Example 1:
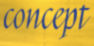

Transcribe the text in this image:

concept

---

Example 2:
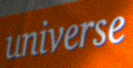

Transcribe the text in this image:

universe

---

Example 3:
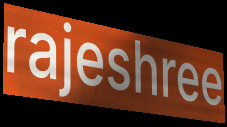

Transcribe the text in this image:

rajeshree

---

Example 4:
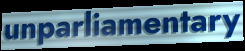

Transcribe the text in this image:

unparliamentary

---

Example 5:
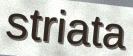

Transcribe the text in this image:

striata